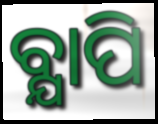
ବ୍ଯାପି